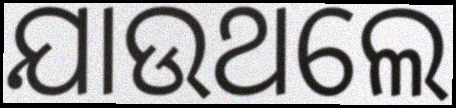
ଯାଉଥଲେ